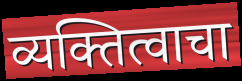
व्यक्तित्वाचा